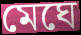
মেঘে